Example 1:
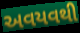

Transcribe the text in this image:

અવયવથી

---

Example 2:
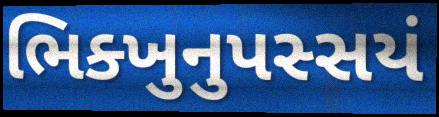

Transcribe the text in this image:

ભિક્ખુનુપસ્સયં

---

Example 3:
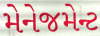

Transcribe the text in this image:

મેનેજમેન્ટ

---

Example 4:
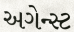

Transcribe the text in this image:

અગેન્સ્ટ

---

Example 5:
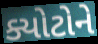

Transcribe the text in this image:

ક્યોટોને